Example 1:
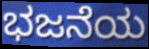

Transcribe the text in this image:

ಭಜನೆಯ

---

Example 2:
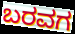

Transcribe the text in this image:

ಬರವಗ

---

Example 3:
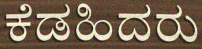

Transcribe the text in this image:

ಕೆಡಹಿದರು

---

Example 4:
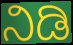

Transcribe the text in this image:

ನಿಡಿ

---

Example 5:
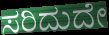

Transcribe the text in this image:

ಸರಿದುದೇ